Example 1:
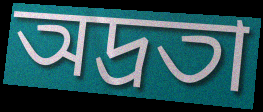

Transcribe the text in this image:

অদ্রতা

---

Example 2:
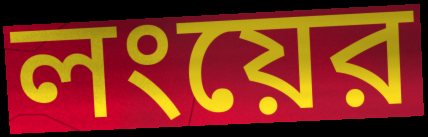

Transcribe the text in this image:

লংয়ের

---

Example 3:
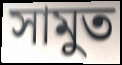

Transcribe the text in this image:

সামুত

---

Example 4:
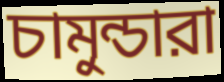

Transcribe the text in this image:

চামুন্ডারা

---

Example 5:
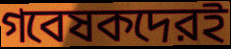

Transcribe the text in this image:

গবেষকদেরই